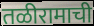
तळीरामाची